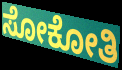
ಸೋಕೋತಿ